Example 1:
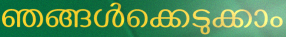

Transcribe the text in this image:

ഞങ്ങൾക്കെടുക്കാം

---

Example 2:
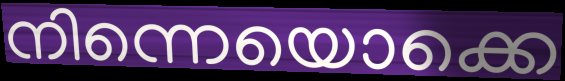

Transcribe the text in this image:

നിന്നെയൊക്കെ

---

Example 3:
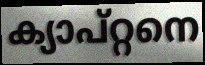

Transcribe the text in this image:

ക്യാപ്റ്റനെ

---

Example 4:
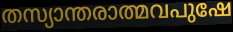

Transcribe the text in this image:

തസ്യാന്തരാത്മവപുഷേ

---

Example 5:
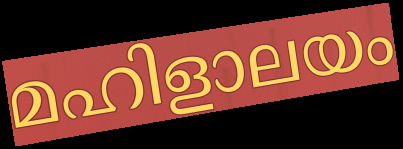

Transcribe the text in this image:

മഹിളാലയം